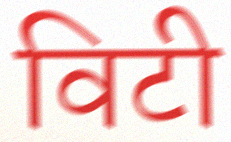
विटी